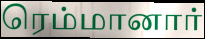
ரெம்மானார்